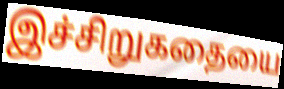
இச்சிறுகதையை